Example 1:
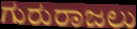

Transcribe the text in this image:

ಗುರುರಾಜಲು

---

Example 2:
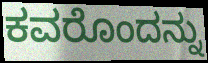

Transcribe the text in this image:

ಕವರೊಂದನ್ನು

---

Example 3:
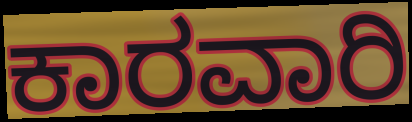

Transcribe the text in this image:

ಕಾರವಾರಿ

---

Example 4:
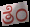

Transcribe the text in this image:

ತೆಂ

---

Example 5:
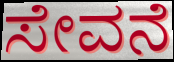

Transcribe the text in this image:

ಸೇವನೆ